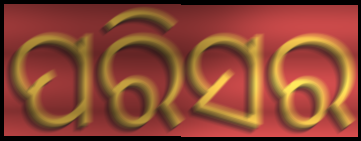
ପରିସର